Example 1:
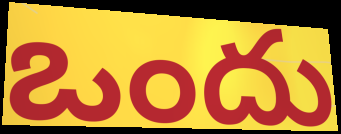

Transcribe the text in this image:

ఒందు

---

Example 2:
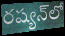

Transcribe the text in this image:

రష్యన్‌లో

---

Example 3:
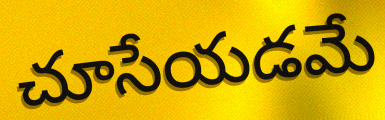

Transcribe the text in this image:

చూసేయడమే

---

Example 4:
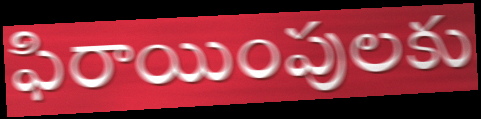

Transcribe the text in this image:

ఫిరాయింపులకు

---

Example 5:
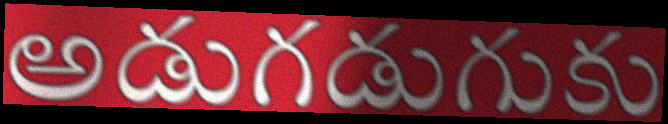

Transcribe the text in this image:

అడుగడుగుకు